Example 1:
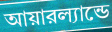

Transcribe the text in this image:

আয়ারল্যান্ডে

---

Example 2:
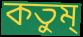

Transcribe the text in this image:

কতুম্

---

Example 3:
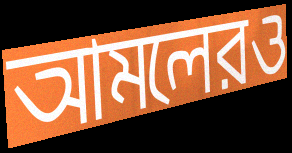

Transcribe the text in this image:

আমলেরও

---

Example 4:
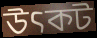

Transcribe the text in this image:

উৎকট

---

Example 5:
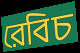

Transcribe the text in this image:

রেবিচ